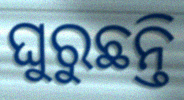
ଘୁରୁଛନ୍ତି